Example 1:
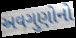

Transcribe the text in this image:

અવગુણોનો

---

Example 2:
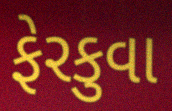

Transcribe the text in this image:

ફેરકુવા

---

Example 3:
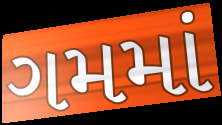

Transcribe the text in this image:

ગમમાં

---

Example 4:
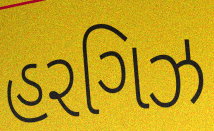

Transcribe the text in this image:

હરગિઝ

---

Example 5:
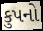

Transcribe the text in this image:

કુપનો